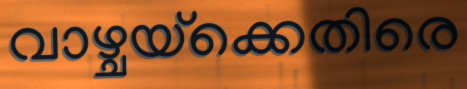
വാഴ്ചയ്‌ക്കെതിരെ